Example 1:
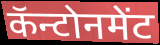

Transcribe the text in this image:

कॅन्टोनमेंट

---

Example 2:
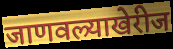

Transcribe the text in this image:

जाणवल्याखेरीज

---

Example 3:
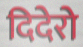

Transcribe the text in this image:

दिदेरो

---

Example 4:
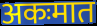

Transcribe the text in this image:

अकःमात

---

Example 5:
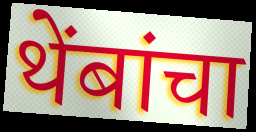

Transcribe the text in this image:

थेंबांचा